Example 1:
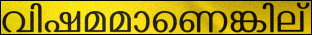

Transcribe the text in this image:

വിഷമമാണെങ്കില്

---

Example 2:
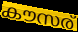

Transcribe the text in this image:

കൗസര്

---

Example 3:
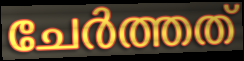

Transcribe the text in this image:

ചേർത്തത്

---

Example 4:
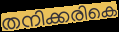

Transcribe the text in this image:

തനിക്കരികെ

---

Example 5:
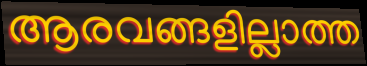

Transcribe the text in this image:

ആരവങ്ങളില്ലാത്ത